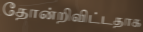
தோன்றிவிட்டதாக